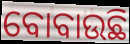
ବୋବାଉଛି